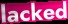
lacked